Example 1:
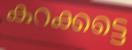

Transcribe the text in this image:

കറക്കട്ടെ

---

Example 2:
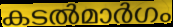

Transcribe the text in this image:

കടൽമാർഗം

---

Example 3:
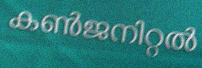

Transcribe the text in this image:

കൺജനിറ്റൽ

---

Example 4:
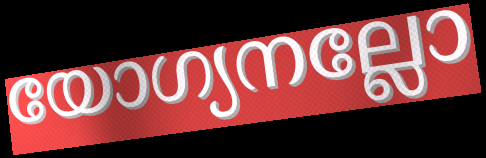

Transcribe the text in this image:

യോഗ്യനല്ലോ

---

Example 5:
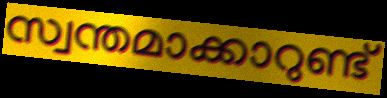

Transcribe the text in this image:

സ്വന്തമാക്കാറുണ്ട്